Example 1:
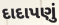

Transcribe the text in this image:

દાદાપણું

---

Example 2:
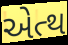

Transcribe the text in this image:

એત્થ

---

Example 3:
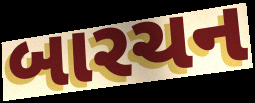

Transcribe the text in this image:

બારચન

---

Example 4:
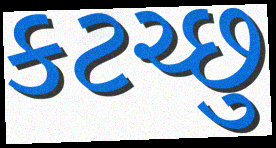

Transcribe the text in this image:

કટચ્છુ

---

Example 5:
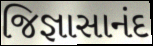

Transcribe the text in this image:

જિજ્ઞાસાનંદ